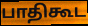
பாதிகூட